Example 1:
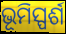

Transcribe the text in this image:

ଭୂମିସ୍ପର୍ଶ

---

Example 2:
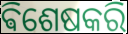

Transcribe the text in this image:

ଵିଶେଷକରି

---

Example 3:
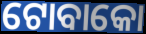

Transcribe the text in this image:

ଟୋବାକୋ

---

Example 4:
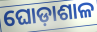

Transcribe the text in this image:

ଘୋଡ଼ାଶାଳ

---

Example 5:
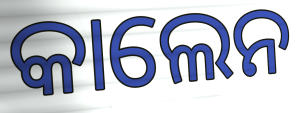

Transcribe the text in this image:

କାଲେନ